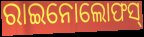
ରାଇନୋଲୋଫସ୍